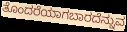
ತೊಂದರೆಯಾಗಬಾರದೆನ್ನುವ